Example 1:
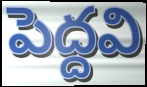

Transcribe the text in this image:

పెద్దవి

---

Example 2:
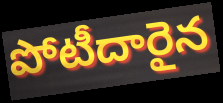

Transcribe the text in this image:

పోటీదారైన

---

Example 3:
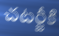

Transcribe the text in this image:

చటర్జీకి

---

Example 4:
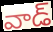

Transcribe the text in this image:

వాడ్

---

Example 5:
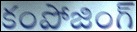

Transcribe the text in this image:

కంపోజింగ్